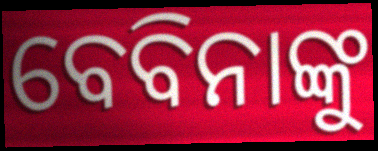
ବେବିନାଙ୍କୁ